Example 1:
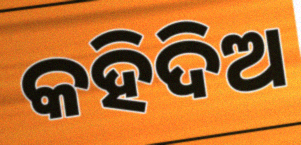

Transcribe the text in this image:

କହିଦିଅ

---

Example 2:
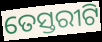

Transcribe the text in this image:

ତେସ୍ତରୀଟି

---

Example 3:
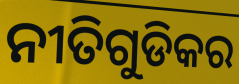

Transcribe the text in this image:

ନୀତିଗୁଡିକର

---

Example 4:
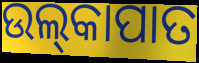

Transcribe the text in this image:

ଉଲ୍‍କାପାତ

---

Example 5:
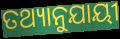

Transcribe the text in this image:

ତଥ୍ୟାନୁଯାୟୀ